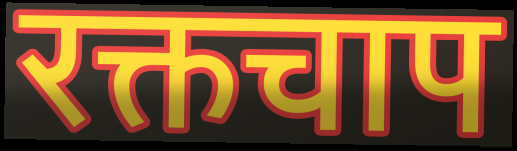
रक्तचाप